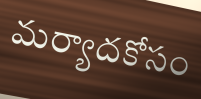
మర్యాదకోసం